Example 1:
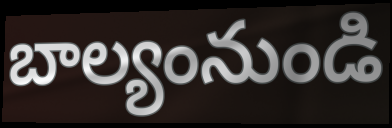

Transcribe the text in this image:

బాల్యంనుండి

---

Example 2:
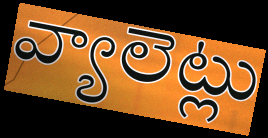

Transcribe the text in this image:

వ్యాలెట్లు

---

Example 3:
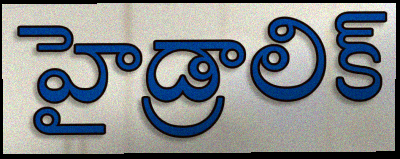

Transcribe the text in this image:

హైడ్రాలిక్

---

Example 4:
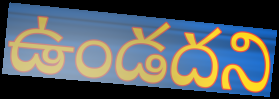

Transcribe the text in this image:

ఉండదని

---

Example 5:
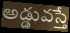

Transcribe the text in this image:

అడ్డువస్తే